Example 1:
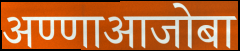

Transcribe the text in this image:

अण्णाआजोबा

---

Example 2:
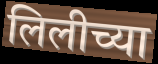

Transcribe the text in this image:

लिलीच्या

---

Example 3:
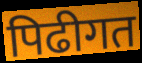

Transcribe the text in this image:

पिढीगत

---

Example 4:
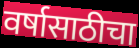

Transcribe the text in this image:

वर्षासाठीचा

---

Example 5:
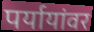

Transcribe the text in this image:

पर्यायांवर